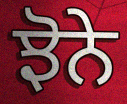
ਝੋਨੇ